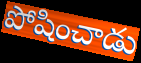
పోషించాడు